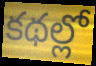
కథల్లో